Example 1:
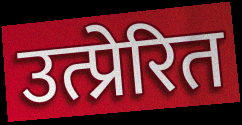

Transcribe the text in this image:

उत्‍प्रेरित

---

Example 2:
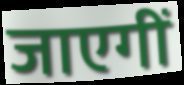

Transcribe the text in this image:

जाएगीं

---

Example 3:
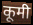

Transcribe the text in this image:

कूमी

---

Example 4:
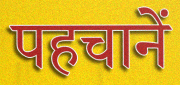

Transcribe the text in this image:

पहचानें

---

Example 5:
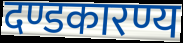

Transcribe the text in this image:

दण्डकारण्य